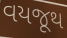
વયજૂથ